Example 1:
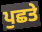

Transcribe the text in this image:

ਪੁਛਤੇ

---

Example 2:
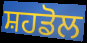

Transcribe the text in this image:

ਸ਼ਹਡੋਲ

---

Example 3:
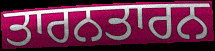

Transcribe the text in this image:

ਤਾਰਨਤਾਰਨ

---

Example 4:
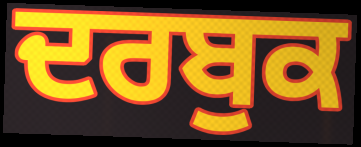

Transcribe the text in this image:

ਦਰਬੁਕ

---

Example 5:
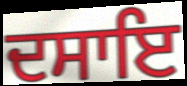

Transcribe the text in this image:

ਦਸਾਇ